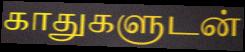
காதுகளுடன்